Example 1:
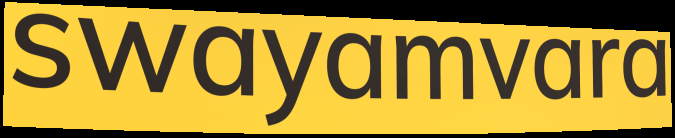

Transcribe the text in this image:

swayamvara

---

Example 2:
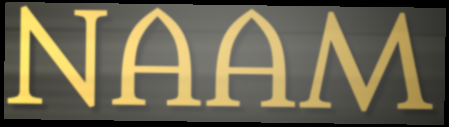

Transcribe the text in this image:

NAAM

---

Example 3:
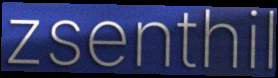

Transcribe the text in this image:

zsenthil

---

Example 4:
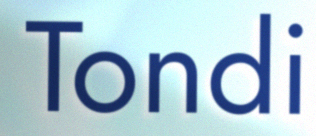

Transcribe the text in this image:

Tondi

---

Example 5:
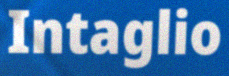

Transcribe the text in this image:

Intaglio